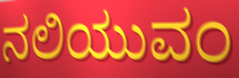
ನಲಿಯುವಂ